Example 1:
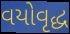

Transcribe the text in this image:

વયોવૃદ્ધ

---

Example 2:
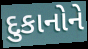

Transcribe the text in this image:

દુકાનોને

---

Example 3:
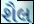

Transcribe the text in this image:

શૈલ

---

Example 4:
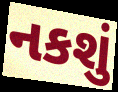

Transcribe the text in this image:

નકશું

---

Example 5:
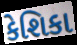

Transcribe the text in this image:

કેશિકા